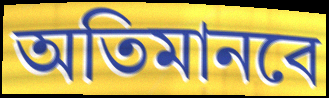
অতিমানবে